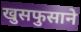
खुसफुसाने